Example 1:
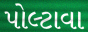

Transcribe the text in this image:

પોલ્ટાવા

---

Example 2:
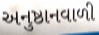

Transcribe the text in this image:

અનુષ્ઠાનવાળી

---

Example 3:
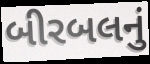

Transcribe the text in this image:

બીરબલનું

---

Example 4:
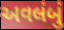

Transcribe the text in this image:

અવલંબું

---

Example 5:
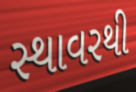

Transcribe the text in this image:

સ્થાવરથી